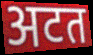
अटत